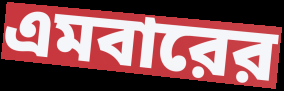
এমবারের